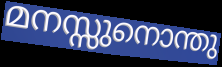
മനസ്സുനൊന്തു